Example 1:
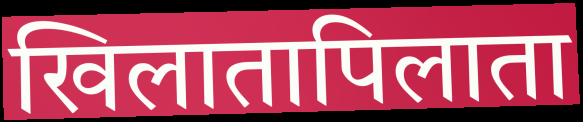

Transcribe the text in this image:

खिलातापिलाता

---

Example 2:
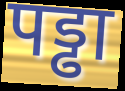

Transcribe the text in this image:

पड्ढा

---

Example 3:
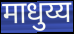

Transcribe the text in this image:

माधुय्य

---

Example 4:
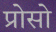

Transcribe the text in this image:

प्रोसो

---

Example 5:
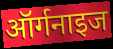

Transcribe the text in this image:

ऑर्गनाइज